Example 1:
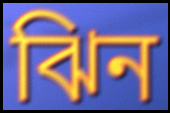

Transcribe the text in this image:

ঝিন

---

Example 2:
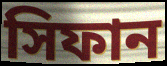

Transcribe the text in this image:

সিফান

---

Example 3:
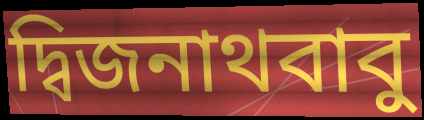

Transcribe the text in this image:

দ্বিজনাথবাবু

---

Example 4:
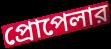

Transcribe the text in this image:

প্রোপেলার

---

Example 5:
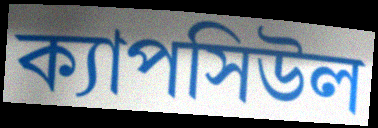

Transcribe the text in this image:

ক্যাপসিউল